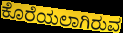
ಕೊರೆಯಲಾಗಿರುವ